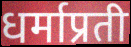
धर्माप्रती